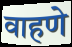
वाहणे